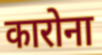
कारोना